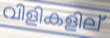
വിളികളില്